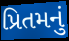
પ્રિતમનું